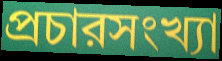
প্রচারসংখ্যা